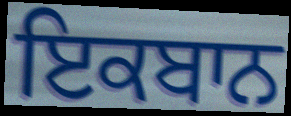
ਇਕਬਾਨ